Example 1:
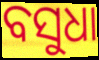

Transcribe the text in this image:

ବସୁଧା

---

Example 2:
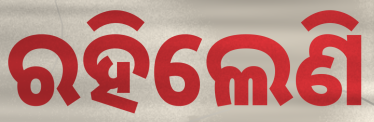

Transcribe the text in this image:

ରହିଲେଣି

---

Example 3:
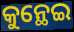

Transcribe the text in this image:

କୁନ୍ଥେଇ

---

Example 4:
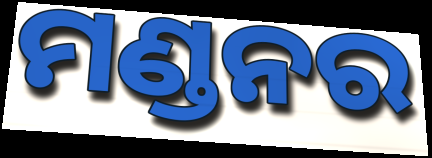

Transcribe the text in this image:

ମଣ୍ଡନର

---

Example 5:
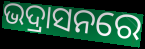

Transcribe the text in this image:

ଭଦ୍ରାସନରେ